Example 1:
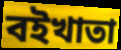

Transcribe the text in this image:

বইখাতা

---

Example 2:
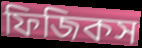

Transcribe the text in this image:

ফিজিকস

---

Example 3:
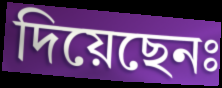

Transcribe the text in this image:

দিয়েছেনঃ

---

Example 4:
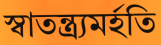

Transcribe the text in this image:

স্বাতন্ত্র্যমর্হতি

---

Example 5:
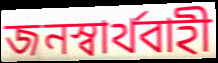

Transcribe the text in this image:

জনস্বার্থবাহী